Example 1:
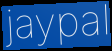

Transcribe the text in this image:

jaypal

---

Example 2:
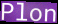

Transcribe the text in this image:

Plon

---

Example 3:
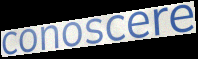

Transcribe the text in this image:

conoscere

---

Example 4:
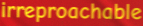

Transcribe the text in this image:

irreproachable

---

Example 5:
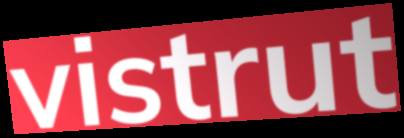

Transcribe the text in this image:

vistrut